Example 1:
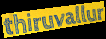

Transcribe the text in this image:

thiruvallur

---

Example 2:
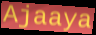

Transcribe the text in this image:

Ajaaya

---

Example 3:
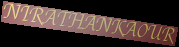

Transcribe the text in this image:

NIRATHANKAOUR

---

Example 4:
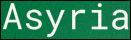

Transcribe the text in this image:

Asyria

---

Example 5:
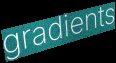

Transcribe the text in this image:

gradients